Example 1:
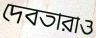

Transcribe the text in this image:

দেবতারাও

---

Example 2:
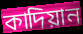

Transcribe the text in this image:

কাদিয়ান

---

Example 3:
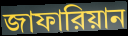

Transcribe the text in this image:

জাফারিয়ান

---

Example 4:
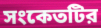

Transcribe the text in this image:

সংকেতটির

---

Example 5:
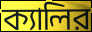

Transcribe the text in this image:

ক্যালির